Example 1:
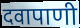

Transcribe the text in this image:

दवापाणी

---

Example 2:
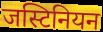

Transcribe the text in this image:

जस्टिनियन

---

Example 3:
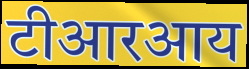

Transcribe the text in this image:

टीआरआय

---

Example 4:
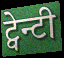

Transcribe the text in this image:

ट्वेन्टी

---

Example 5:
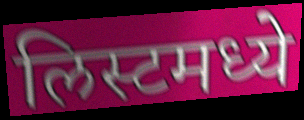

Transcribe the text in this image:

लिस्टमध्ये